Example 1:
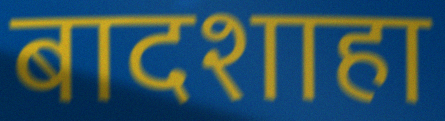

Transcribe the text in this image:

बादशाहा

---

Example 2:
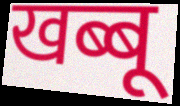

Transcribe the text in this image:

खब्‍बू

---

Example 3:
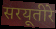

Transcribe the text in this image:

सरयूतीरे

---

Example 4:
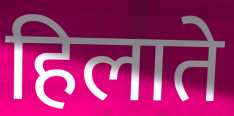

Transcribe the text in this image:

हिलाते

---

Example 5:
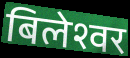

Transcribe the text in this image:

बिलेश्वर